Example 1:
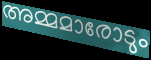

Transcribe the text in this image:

അമ്മമാരോടും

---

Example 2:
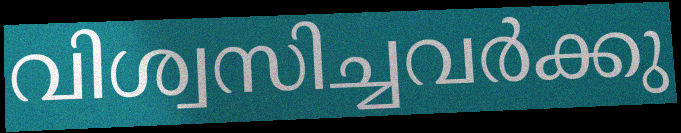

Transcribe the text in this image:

വിശ്വസിച്ചവർക്കു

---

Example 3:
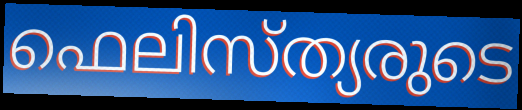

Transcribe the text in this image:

ഫെലിസ്ത്യരുടെ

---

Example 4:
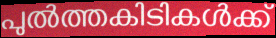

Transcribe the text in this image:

പുൽത്തകിടികൾക്ക്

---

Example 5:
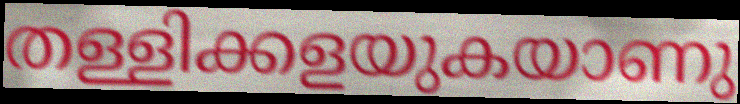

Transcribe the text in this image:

തള്ളിക്കളയുകയാണു